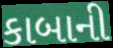
કાબાની